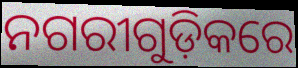
ନଗରୀଗୁଡ଼ିକରେ